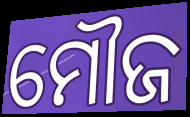
ମୌଜ